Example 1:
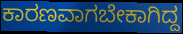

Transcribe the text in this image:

ಕಾರಣವಾಗಬೇಕಾಗಿದ್ದ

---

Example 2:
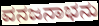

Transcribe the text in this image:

ವನಜನಾಭನು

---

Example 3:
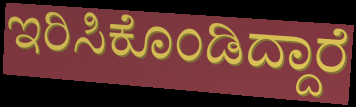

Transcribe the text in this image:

ಇರಿಸಿಕೊಂಡಿದ್ದಾರೆ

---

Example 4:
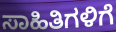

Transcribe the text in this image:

ಸಾಹಿತಿಗಳಿಗೆ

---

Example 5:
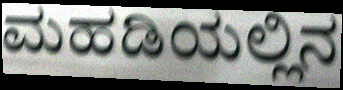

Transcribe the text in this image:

ಮಹಡಿಯಲ್ಲಿನ